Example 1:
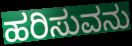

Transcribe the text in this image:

ಹರಿಸುವನು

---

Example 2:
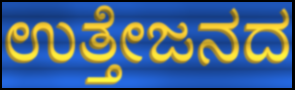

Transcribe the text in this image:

ಉತ್ತೇಜನದ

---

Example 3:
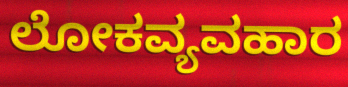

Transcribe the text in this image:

ಲೋಕವ್ಯವಹಾರ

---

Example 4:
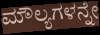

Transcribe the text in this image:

ಮೌಲ್ಯಗಳನ್ನೇ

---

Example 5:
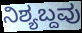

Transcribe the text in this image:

ನಿಶ್ಯಬ್ದವು